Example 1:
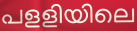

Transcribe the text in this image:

പളളിയിലെ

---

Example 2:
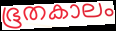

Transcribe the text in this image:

ഭൂതകാലം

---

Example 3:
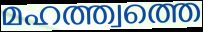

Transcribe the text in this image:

മഹത്ത്വത്തെ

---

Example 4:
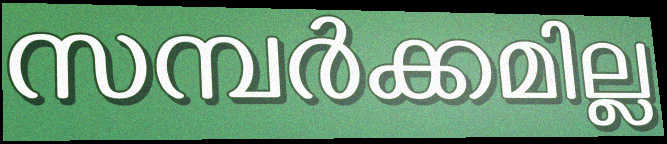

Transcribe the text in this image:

സമ്പർക്കമില്ല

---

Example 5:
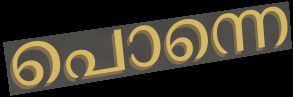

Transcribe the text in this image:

പൊന്നെ